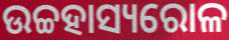
ଉଚ୍ଚହାସ୍ୟରୋଳ